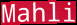
Mahli